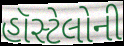
હૉસ્ટેલોની